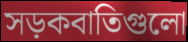
সড়কবাতিগুলো